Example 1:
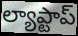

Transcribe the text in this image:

ల్యాప్టాప్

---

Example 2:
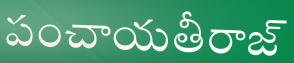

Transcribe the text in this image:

పంచాయతీరాజ్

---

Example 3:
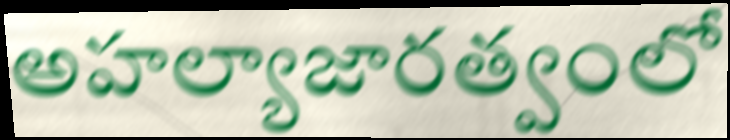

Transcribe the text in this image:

అహల్యాజారత్వంలో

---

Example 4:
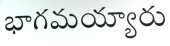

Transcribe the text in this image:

భాగమయ్యారు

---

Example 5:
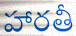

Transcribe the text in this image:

హారతీ